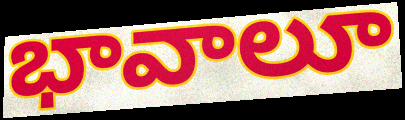
భావాలూ